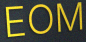
EOM